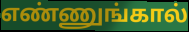
எண்ணுங்கால்